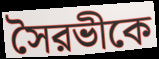
সৈরভীকে